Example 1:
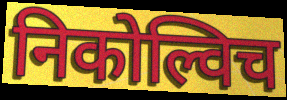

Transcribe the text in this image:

निकोल्विच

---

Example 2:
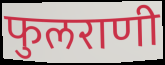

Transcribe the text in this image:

फुलराणी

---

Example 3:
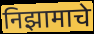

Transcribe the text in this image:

निझामाचे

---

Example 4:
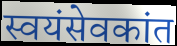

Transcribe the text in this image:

स्वयंसेवकांत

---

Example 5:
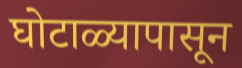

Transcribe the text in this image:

घोटाळ्यापासून